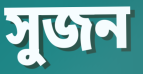
সুজন